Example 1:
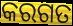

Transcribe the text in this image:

କରଗତ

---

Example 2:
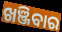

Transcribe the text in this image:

ଖଞ୍ଜିବାର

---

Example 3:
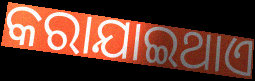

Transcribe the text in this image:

କରାଯାଇଥାଏ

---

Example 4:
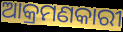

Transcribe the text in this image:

ଆକ୍ରମଣକାରୀ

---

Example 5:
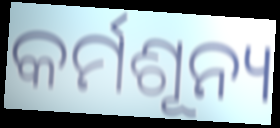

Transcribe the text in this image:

କର୍ମଶୂନ୍ୟ